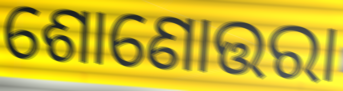
ଶୋଣୋତ୍ତରା